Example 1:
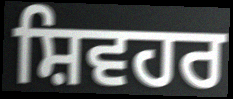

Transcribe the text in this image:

ਸ਼ਿਵਹਰ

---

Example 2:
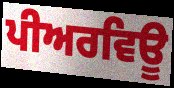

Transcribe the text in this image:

ਪੀਅਰਵਿਊ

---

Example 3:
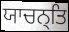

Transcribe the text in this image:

ਯਾਚਨ੍ਤਿ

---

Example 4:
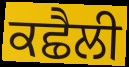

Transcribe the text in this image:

ਕਛੈਲੀ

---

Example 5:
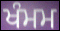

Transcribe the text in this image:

ਖੰਮਮ